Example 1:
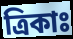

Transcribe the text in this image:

ত্রিকাঃ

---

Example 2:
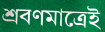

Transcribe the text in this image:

শ্রবণমাত্রেই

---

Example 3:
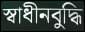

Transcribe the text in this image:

স্বাধীনবুদ্ধি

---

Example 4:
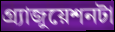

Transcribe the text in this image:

গ্র্যাজুয়েশনটা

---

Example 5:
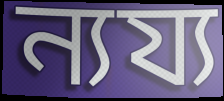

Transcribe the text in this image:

ন্যয্য